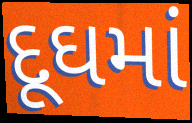
દૂઘમાં